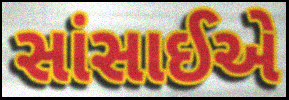
સાંસાઈએ